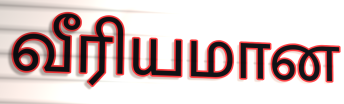
வீரியமான